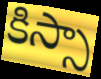
కిస్సా